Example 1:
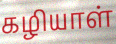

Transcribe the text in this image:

கழியாள்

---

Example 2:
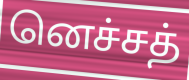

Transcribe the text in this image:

னெச்சத்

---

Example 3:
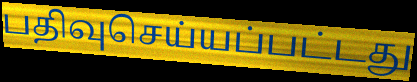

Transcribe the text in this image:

பதிவுசெய்யப்பட்டது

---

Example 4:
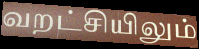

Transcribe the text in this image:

வறட்சியிலும்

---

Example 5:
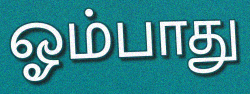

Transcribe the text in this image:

ஓம்பாது